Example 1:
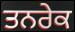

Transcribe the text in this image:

ਤਨਰੇਕ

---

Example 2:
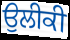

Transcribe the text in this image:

ਉਲੀਕੀ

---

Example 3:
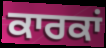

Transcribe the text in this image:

ਕਾਰਕਾਂ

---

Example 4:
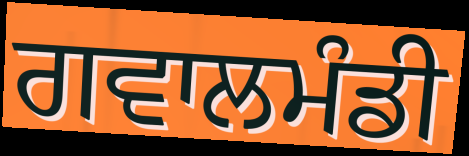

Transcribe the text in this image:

ਗਵਾਲਮੰਡੀ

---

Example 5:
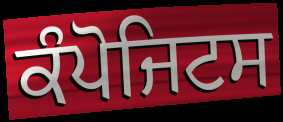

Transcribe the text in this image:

ਕੰਪੋਜਿਟਸ